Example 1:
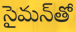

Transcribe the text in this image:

సైమన్‌తో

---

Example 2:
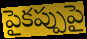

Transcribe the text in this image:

పైకప్పుపై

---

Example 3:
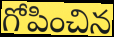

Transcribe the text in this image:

గోపించిన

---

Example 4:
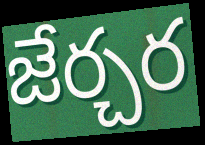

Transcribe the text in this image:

జేర్చర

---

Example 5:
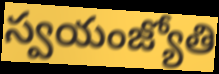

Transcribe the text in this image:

స్వయంజ్యోతి